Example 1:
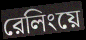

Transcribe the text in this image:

রেলিংয়ে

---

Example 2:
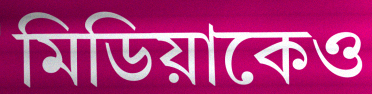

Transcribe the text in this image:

মিডিয়াকেও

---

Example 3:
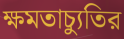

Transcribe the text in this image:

ক্ষমতাচ্যুতির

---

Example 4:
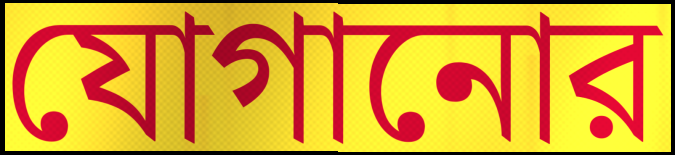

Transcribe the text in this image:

যোগানোর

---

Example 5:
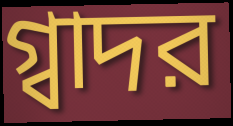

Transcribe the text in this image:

গ্বাদর